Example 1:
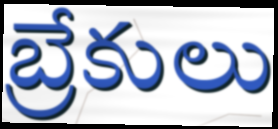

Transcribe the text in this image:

బ్రేకులు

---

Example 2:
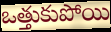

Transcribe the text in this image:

ఒత్తుకుపోయి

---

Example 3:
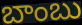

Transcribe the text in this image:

బాంబు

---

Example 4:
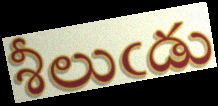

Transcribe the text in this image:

శీలుఁడు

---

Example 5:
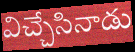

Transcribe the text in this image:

విచ్చేసినాడు